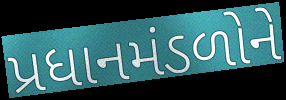
પ્રધાનમંડળોને